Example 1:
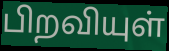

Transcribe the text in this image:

பிறவியுள்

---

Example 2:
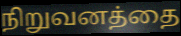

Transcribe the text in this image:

நிறுவனத்தை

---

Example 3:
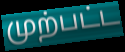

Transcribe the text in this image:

முற்பட்ட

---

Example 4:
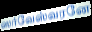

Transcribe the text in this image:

ஸர்வேஸ்வரனே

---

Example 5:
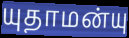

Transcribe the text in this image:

யுதாமன்யு